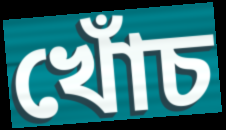
খোঁচ